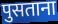
पुसताना